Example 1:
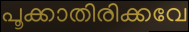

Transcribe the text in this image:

പൂക്കാതിരിക്കവേ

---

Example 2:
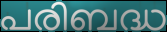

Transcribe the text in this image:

പരിബദ്ധ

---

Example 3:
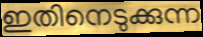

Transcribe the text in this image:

ഇതിനെടുക്കുന്ന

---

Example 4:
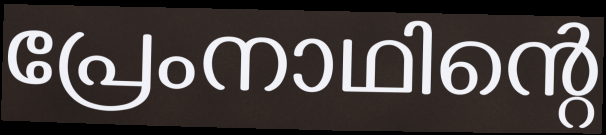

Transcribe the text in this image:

പ്രേംനാഥിന്റെ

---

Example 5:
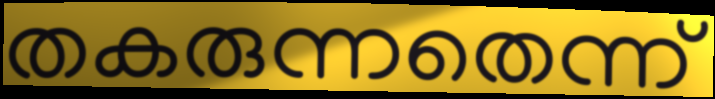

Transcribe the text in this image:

തകരുന്നതെന്ന്